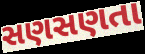
સણસણતા